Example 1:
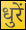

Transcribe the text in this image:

धुरें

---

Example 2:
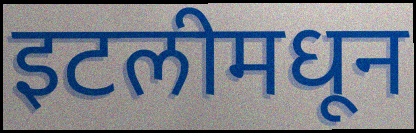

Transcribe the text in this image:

इटलीमधून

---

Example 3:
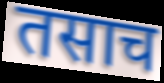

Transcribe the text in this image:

तसाच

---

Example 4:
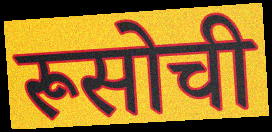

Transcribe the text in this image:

रूसोची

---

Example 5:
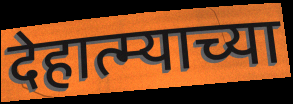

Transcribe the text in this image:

देहात्म्याच्या